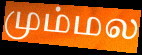
மும்மல